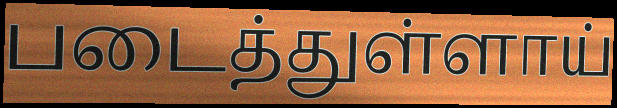
படைத்துள்ளாய்